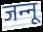
जन्नू